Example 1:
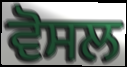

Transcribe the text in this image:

ਵੋਸਲ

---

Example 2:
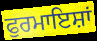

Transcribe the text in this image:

ਫੁਰਮਾਇਸ਼ਾਂ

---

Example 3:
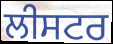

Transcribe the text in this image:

ਲੀਸਟਰ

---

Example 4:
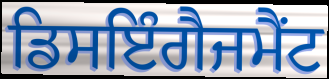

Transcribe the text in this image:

ਡਿਸਇੰਗੈਜਮੈਂਟ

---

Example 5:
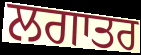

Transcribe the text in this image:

ਲਗਾਤਰ